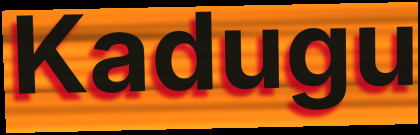
Kadugu